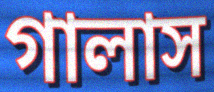
গালাস